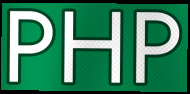
PHP